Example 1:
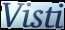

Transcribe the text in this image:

Visti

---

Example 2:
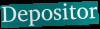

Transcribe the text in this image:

Depositor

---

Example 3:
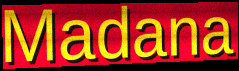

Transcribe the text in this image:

Madana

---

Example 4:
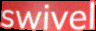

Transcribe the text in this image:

swivel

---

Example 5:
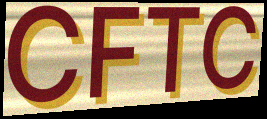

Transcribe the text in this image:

CFTC